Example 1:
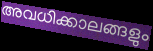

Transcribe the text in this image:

അവധിക്കാലങ്ങളും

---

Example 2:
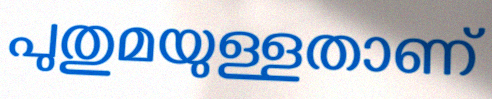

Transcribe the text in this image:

പുതുമയുള്ളതാണ്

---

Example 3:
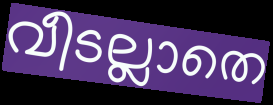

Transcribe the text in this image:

വീടല്ലാതെ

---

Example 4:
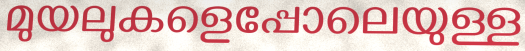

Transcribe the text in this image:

മുയലുകളെപ്പോലെയുള്ള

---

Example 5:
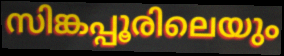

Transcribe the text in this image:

സിങ്കപ്പൂരിലെയും